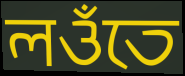
লওঁতে